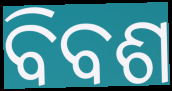
ବିବଶ